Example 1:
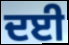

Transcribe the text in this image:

ਦਈ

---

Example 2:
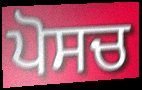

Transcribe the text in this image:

ਪੋਸਚ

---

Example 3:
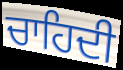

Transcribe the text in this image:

ਚਾਹਿਦੀ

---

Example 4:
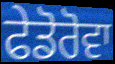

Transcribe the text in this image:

ਫੇਡੋਰੋਵਾ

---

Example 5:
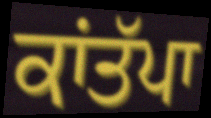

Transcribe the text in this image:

ਕਾਂਤੱਪਾ